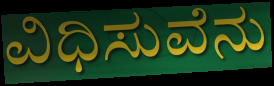
ವಿಧಿಸುವೆನು